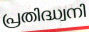
പ്രതിദ്ധ്വനി